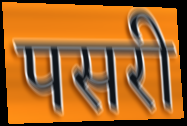
पसरी